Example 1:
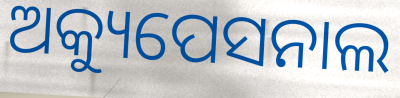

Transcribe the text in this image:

ଅକ୍ୟୁପେସନାଲ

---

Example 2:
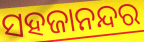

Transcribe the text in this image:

ସହଜାନନ୍ଦର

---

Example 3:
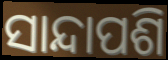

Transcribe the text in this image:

ସାନ୍ଦାପଶି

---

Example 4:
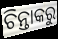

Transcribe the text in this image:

ଚିନ୍ତାକରୁ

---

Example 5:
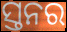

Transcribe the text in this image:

ସ୍ତନର